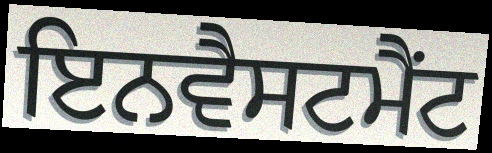
ਇਨਵੈਸਟਮੈਂਟ